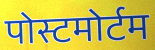
पोस्टमोर्टम